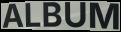
ALBUM